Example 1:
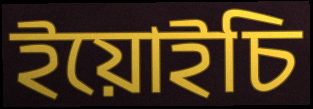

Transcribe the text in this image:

ইয়োইচি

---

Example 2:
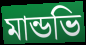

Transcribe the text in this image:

মান্ডভি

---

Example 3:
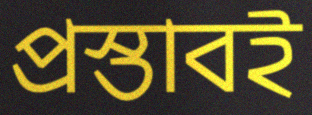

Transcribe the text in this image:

প্রস্তাবই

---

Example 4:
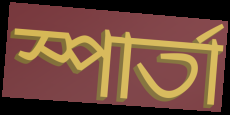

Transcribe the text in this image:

স্পার্তা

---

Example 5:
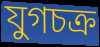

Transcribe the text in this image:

যুগচক্র